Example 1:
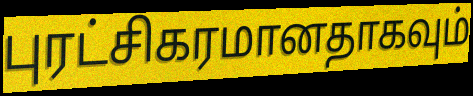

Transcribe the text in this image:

புரட்சிகரமானதாகவும்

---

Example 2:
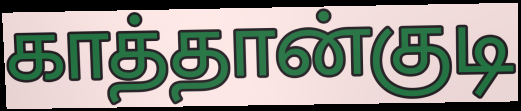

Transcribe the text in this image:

காத்தான்குடி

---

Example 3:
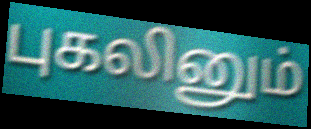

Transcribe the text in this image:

புகலினும்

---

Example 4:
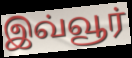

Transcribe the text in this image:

இவ்வூர்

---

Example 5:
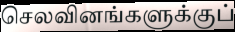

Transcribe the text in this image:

செலவினங்களுக்குப்